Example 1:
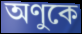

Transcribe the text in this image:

অণুকে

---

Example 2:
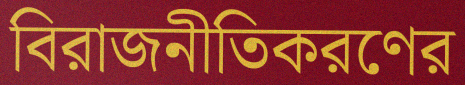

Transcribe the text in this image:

বিরাজনীতিকরণের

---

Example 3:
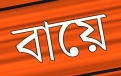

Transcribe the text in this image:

বায়ে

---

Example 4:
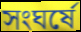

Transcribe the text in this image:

সংঘর্ষে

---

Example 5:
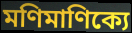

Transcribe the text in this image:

মণিমাণিক্যে